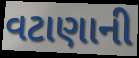
વટાણાની